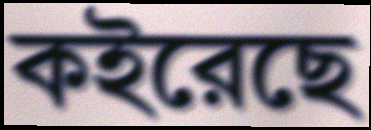
কইরেছে